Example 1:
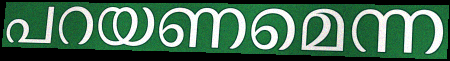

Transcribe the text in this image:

പറയണമെന്ന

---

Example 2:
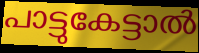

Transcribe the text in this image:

പാട്ടുകേട്ടാൽ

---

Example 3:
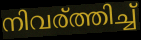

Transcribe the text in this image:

നിവര്ത്തിച്ച്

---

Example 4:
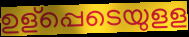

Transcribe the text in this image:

ഉള്പ്പെടെയുളള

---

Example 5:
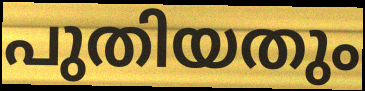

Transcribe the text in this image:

പുതിയതും